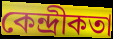
কেন্দ্রীকতা